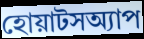
হোয়াটসঅ্যাপ